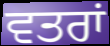
ਵਤਰਾਂ